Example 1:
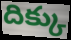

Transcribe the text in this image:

దిక్కు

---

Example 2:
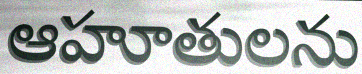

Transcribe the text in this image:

ఆహూతులను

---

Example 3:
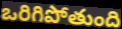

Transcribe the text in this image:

ఒరిగిపోతుంది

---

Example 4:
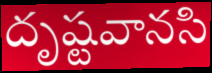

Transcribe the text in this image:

దృష్టవానసి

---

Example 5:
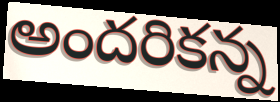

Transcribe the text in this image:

అందరికన్న